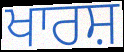
ਖਾਰਸ਼